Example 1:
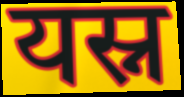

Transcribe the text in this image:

यस्न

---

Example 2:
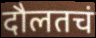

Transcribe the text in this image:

दौलतचं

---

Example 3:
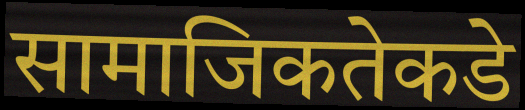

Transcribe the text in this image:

सामाजिकतेकडे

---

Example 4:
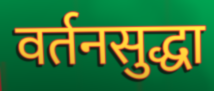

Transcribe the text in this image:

वर्तनसुद्धा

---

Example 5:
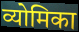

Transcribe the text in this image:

व्योमिका